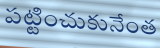
పట్టించుకునేంత